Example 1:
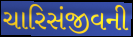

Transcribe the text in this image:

ચારિસંજીવની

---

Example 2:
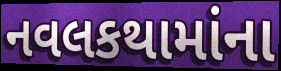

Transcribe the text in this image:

નવલકથામાંના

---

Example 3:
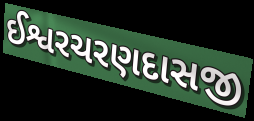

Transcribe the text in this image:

ઈશ્વરચરણદાસજી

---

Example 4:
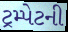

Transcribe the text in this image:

ટ્રમ્પેટની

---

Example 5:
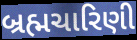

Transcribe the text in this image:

બ્રહ્મચારિણી